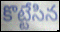
కొట్టేసిన